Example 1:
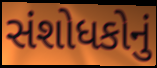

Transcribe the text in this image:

સંશોધકોનું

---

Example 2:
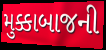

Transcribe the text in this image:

મુક્કાબાજની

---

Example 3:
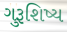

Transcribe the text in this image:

ગુરૂશિષ્ય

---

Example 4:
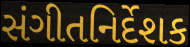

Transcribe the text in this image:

સંગીતનિર્દેશક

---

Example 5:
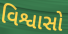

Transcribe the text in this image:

વિશ્વાસો